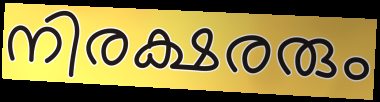
നിരക്ഷരരും